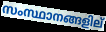
സംസ്ഥാനങ്ങളില്